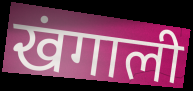
खंगाली